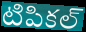
టిపికల్